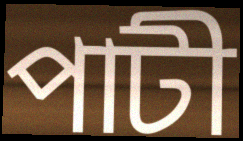
পাটী